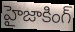
హైజాకింగ్